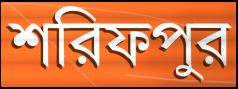
শরিফপুর